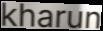
kharun